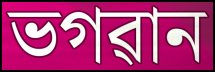
ভগৱান